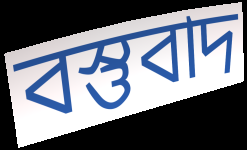
বস্তুবাদ